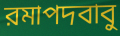
রমাপদবাবু